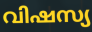
വിഷസ്യ